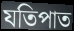
যতিপাত